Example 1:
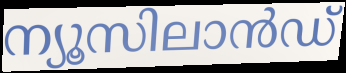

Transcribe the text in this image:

ന്യൂസിലാൻഡ്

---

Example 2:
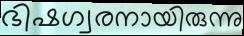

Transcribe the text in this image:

ഭിഷഗ്വരനായിരുന്നു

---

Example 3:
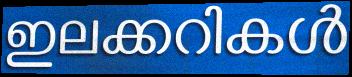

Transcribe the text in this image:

ഇലക്കറികൾ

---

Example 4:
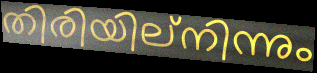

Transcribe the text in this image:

തിരിയില്നിന്നും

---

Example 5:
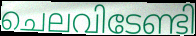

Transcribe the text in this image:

ചെലവിടേണ്ടി